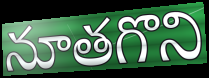
నూతగొని